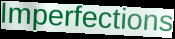
Imperfections